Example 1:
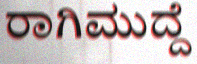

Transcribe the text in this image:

ರಾಗಿಮುದ್ದೆ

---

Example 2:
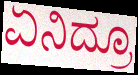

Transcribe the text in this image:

ಏನಿದ್ರೂ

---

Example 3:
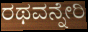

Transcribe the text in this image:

ರಥವನ್ನೇರಿ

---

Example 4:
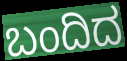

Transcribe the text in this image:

ಬಂದಿದ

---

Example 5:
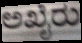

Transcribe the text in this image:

ಅಖೈರು